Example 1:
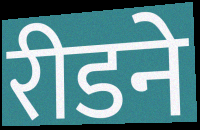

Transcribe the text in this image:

रीडने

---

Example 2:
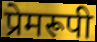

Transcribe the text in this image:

प्रेमरूपी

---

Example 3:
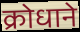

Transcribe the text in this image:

क्रोधाने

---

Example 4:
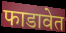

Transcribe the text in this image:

फाडावेत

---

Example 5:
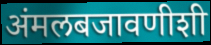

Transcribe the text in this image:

अंमलबजावणीशी